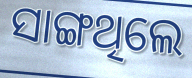
ସାଙ୍ଗଥିଲେ